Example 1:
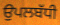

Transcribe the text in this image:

ਉਪਲਬੱਧੀ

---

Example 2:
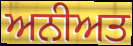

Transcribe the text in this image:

ਅਨੀਅਤ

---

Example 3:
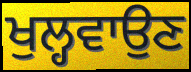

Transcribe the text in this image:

ਖੁਲ੍ਹਵਾਉਣ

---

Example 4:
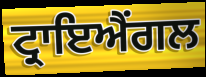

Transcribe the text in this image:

ਟ੍ਰਾਇਐਂਗਲ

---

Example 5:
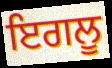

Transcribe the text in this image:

ਇਗਲੂ